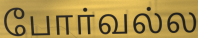
போர்வல்ல